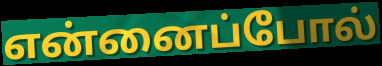
என்னைப்போல்